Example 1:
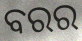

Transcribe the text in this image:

ବରର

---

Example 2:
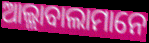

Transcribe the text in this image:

ଆଲ୍ଲାବାଲାମାନେ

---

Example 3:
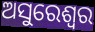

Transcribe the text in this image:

ଅସୁରେଶ୍ୱର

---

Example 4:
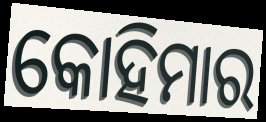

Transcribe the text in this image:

କୋହିମାର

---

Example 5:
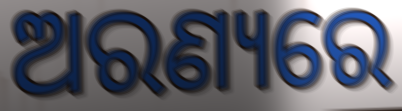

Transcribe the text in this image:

ଅରଣ୍ୟରେ